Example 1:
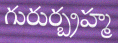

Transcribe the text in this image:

గురుర్బ్రహ్మ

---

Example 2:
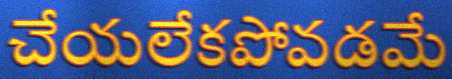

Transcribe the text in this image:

చేయలేకపోవడమే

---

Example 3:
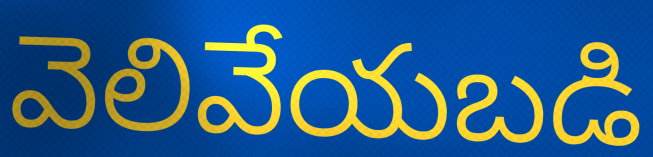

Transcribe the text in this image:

వెలివేయబడి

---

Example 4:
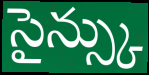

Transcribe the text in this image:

సైన్స్కు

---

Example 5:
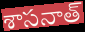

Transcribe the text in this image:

శాసనాత్